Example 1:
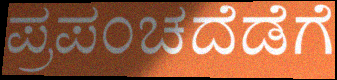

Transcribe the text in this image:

ಪ್ರಪಂಚದೆಡೆಗೆ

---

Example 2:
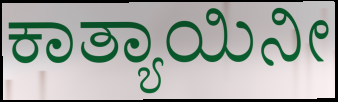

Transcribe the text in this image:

ಕಾತ್ಯಾಯಿನೀ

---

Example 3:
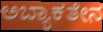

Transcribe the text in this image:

ಅಬ್ಯಾಕತೇನ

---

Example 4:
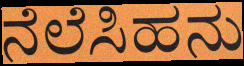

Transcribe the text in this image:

ನೆಲೆಸಿಹನು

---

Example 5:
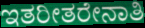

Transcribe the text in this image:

ಇತರೀತರೇನಾತಿ